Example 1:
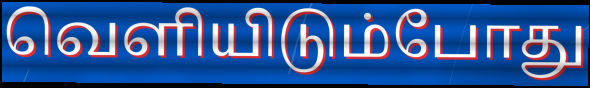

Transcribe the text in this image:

வெளியிடும்போது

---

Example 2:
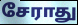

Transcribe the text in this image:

சேராது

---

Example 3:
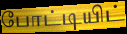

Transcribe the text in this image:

போட்டியிட்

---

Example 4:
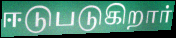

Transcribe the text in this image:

ஈடுபடுகிறார்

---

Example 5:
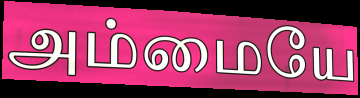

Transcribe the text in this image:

அம்மையே